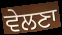
ਵੇਲਣਾ